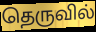
தெருவில்